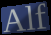
Alf